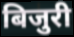
बिजुरी